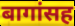
बागांसह